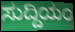
ಸುದ್ದಿಯಂ